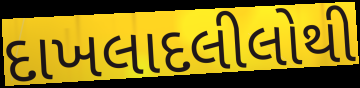
દાખલાદલીલોથી